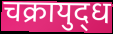
चक्रायुद्ध